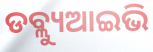
ଡବ୍ଲ୍ୟୁଆଇଭି